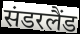
संडरलैंड